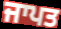
ਜਾਪਤ